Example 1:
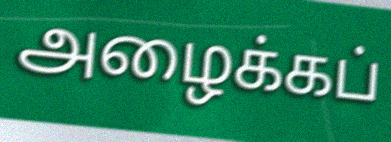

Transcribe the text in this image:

அழைக்கப்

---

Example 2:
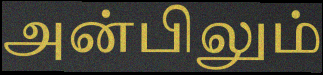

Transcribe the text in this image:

அன்பிலும்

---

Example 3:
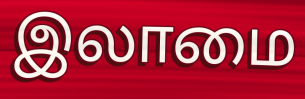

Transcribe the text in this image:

இலாமை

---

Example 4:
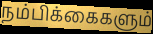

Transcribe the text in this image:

நம்பிக்கைகளும்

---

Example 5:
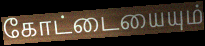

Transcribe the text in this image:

கோட்டையையும்